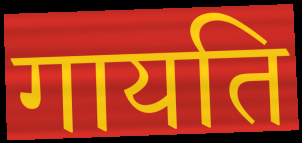
गायति